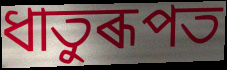
ধাতুৰূপত